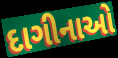
દાગીનાઓ